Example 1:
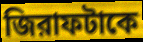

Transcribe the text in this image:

জিরাফটাকে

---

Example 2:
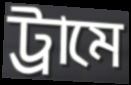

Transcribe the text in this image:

ট্রামে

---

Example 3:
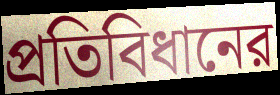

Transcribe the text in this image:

প্রতিবিধানের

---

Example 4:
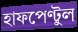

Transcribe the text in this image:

হাফপেণ্টুল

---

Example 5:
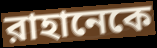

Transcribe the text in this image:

রাহানেকে